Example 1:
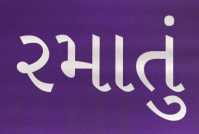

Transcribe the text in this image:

રમાતું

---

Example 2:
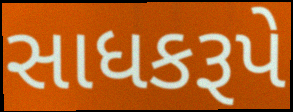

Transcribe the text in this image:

સાધકરૂપે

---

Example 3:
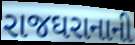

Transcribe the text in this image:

રાજઘરાનાની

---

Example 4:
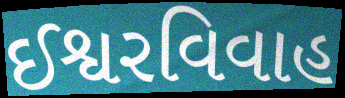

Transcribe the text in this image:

ઈશ્વરવિવાહ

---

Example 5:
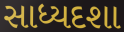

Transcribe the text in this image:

સાધ્યદશા